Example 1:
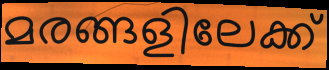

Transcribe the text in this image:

മരങ്ങളിലേക്ക്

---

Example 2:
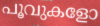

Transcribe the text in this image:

പൂവുകളോ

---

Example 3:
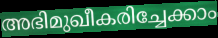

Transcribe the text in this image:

അഭിമുഖീകരിച്ചേക്കാം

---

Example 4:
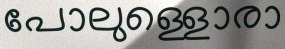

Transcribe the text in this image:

പോലുള്ളൊരാ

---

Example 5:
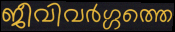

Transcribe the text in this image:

ജീവിവർഗ്ഗത്തെ